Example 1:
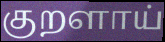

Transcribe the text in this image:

குறளாய்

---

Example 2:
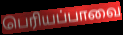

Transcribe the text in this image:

பெரியப்பாவை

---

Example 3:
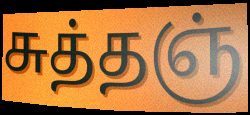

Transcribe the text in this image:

சுத்தஞ்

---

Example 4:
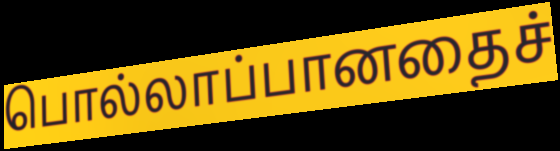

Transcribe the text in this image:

பொல்லாப்பானதைச்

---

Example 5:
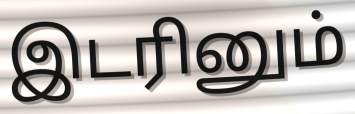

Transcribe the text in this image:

இடரினும்